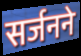
सर्जनने